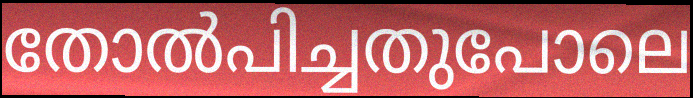
തോൽപിച്ചതുപോലെ